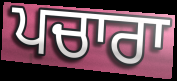
ਪਚਾਰਾ